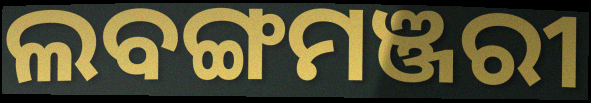
ଲବଙ୍ଗମଞ୍ଜରୀ